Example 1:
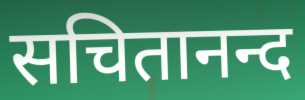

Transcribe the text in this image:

सचितानन्द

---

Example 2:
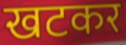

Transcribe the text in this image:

खटकर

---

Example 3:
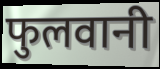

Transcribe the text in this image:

फुलवानी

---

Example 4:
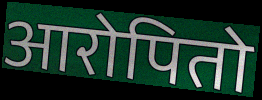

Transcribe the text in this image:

आरोपितो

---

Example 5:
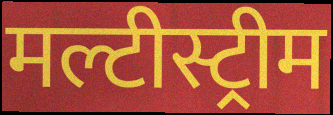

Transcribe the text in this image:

मल्टीस्ट्रीम